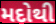
મદોથી